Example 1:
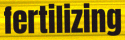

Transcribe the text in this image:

fertilizing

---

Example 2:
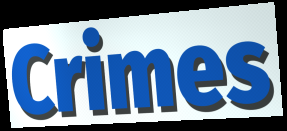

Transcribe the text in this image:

Crimes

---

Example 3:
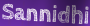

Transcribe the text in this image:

Sannidhi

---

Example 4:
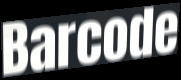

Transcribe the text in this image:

Barcode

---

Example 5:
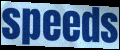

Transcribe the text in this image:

speeds